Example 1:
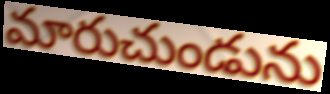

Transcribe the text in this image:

మారుచుండును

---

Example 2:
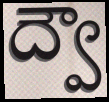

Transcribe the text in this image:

ద్వౌ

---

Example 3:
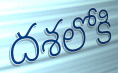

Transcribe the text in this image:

దశలోకి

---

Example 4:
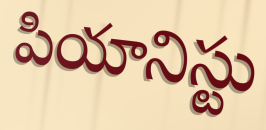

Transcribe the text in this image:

పియానిస్టు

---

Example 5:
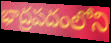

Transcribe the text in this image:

భాద్రపదంలోని